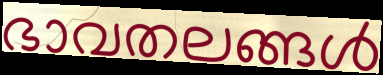
ഭാവതലങ്ങൾ